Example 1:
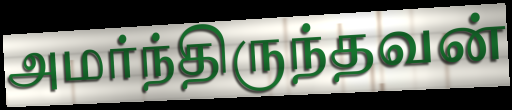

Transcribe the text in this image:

அமர்ந்திருந்தவன்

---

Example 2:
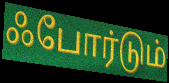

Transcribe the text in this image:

ஃபோர்டும்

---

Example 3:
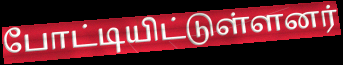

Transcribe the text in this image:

போட்டியிட்டுள்ளனர்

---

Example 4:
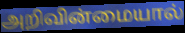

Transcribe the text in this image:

அறிவின்மையால்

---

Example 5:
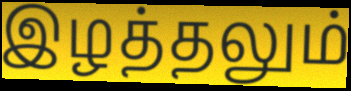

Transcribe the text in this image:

இழத்தலும்